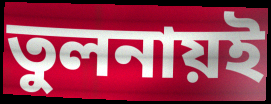
তুলনায়ই